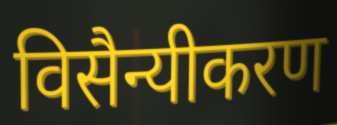
विसैन्यीकरण